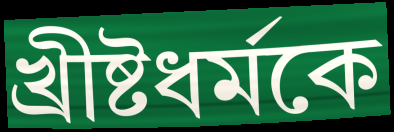
খ্রীষ্টধর্মকে